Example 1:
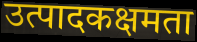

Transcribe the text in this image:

उत्पादकक्षमता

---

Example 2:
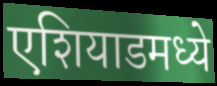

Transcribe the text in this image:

एशियाडमध्ये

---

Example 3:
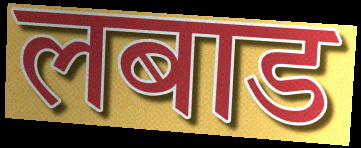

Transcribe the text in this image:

लबाड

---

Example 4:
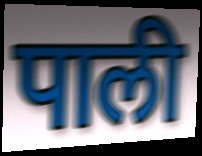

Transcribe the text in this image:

पाली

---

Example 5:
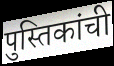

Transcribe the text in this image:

पुस्तिकांची